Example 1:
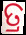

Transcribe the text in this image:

ତ୍ର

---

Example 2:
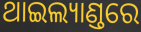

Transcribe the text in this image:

ଥାଇଲ୍ୟାଣ୍ଡରେ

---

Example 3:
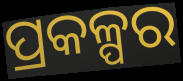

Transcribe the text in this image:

ପ୍ରକଳ୍ପର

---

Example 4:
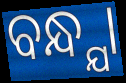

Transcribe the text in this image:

ବନ୍ଧ୍ଯା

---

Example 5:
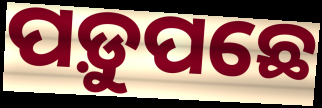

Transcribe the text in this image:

ପଡ଼ୁପଛେ